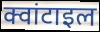
क्वांटाइल